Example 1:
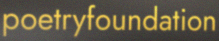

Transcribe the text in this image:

poetryfoundation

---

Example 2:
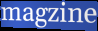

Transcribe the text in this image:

magzine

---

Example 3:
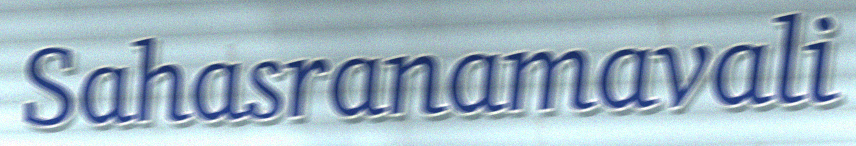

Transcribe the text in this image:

Sahasranamavali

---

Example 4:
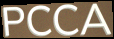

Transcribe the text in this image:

PCCA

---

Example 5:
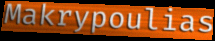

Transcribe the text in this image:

Makrypoulias